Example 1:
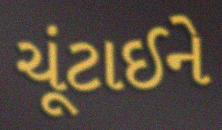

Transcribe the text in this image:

ચૂંટાઈને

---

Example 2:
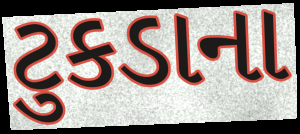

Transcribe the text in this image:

ટુકડાના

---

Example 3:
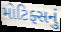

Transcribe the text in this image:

મોટિફ્સનું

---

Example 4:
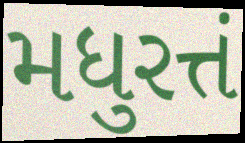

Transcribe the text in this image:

મધુરત્તં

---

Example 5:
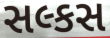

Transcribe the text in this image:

સલ્કસ